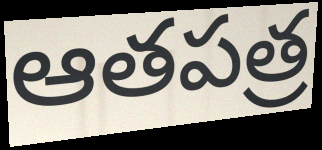
ఆతపత్ర